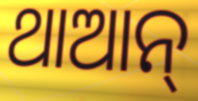
ଥାଆନ୍